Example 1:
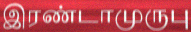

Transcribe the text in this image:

இரண்டாமுருபு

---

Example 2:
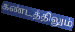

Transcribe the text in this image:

கண்டத்திலும்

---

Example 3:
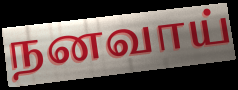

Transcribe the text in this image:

நனவாய்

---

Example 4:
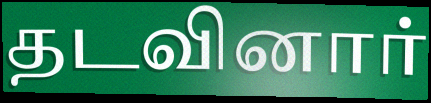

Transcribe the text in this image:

தடவினார்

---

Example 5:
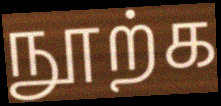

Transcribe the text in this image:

நூற்க